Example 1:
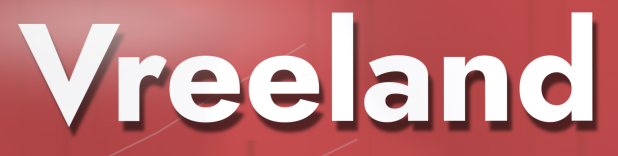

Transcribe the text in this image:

Vreeland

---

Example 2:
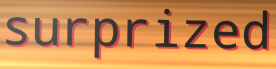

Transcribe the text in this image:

surprized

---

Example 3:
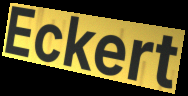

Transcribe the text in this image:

Eckert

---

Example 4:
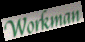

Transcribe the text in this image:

Workman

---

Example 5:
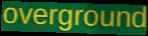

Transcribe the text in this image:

overground